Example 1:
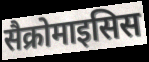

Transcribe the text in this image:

सैक्रोमाइसिस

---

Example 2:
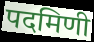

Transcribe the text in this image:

पदमिणी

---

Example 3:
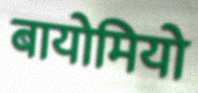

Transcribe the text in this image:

बायोमियो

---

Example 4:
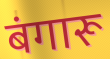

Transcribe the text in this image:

बंगारू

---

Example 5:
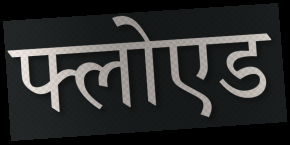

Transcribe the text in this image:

फ्लोएड